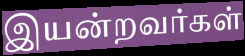
இயன்றவர்கள்